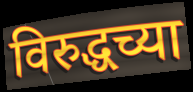
विरुद्धच्या